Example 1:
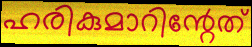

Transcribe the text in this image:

ഹരികുമാറിന്റേത്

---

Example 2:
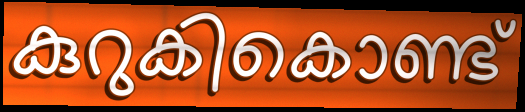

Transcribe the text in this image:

കുറുകികൊണ്ട്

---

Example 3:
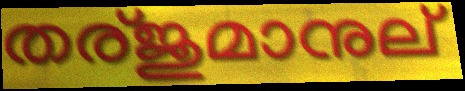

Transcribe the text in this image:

തര്ജുമാനുല്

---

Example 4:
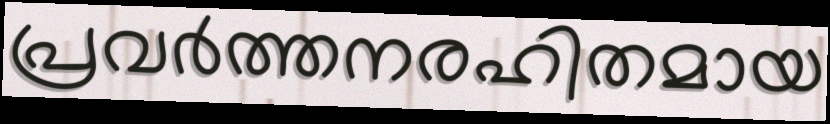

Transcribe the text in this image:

പ്രവർത്തനരഹിതമായ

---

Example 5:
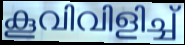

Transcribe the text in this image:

കൂവിവിളിച്ച്